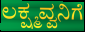
ಲಕ್ಷ್ಮವ್ವನಿಗೆ